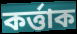
কৰ্ত্তাক